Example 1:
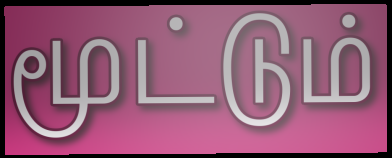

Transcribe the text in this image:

மூட்டும்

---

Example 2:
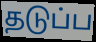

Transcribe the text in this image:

தடுப்ப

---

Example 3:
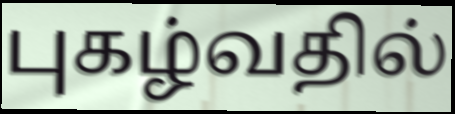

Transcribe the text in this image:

புகழ்வதில்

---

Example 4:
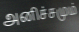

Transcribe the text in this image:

அனிச்சமும்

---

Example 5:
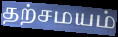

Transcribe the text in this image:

தற்சமயம்